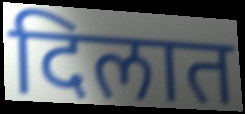
दिलात